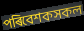
পৰিবেশকসকল